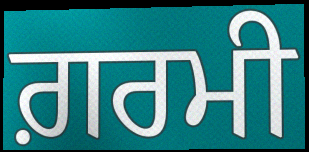
ਗ਼ਰਮੀ